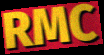
RMC